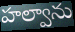
హల్వాను